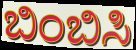
ಬಿಂಬಿಸಿ